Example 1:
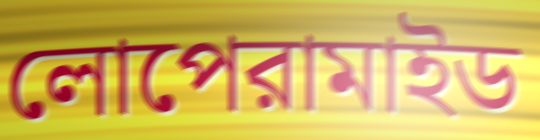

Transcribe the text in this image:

লোপেরামাইড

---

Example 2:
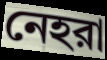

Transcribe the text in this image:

নেহরা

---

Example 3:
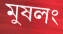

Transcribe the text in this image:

মুষলং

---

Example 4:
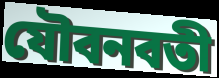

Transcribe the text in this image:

যৌবনবতী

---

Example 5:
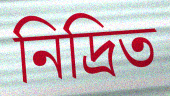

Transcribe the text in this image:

নিদ্রিত